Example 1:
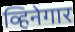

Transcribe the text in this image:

व्हिनेगार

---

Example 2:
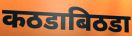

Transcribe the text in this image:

कठडाबिठडा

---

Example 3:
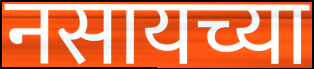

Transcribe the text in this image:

नसायच्या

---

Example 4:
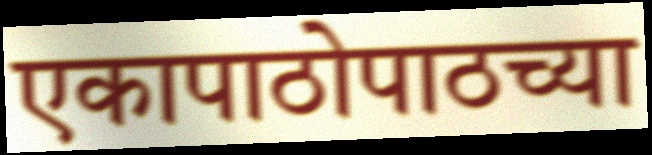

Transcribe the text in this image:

एकापाठोपाठच्या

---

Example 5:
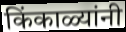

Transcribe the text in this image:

किंकाळ्यांनी